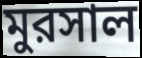
মুরসাল